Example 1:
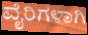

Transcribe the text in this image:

ವೈರಿಗಳಾಗಿ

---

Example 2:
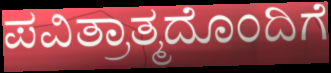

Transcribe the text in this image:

ಪವಿತ್ರಾತ್ಮದೊಂದಿಗೆ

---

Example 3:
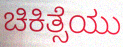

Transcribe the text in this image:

ಚಿಕಿತ್ಸೆಯು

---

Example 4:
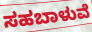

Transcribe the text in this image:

ಸಹಬಾಳುವೆ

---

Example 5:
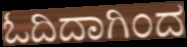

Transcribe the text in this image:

ಓದಿದಾಗಿಂದ